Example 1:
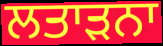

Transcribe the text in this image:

ਲਤਾੜਨਾ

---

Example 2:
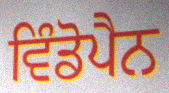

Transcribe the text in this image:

ਵਿੰਡੋਪੈਨ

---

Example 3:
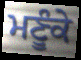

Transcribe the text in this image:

ਮਣੂੰਕੇ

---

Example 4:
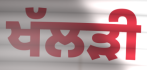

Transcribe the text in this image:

ਖੱਲੜੀ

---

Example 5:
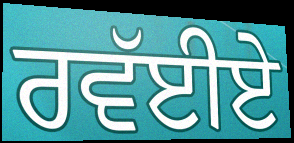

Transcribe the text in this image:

ਰਵੱਈਏ